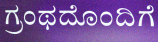
ಗ್ರಂಥದೊಂದಿಗೆ